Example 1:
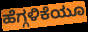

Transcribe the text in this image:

ಹೆಗ್ಗಳಿಕೆಯೂ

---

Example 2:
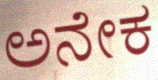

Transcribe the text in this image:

ಅನೇಕ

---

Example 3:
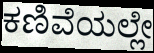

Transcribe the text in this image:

ಕಣಿವೆಯಲ್ಲೇ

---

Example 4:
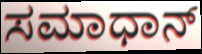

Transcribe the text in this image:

ಸಮಾಧಾನ್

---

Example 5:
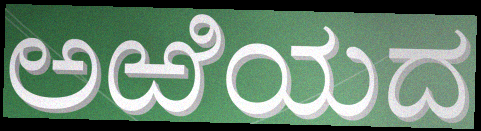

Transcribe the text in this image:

ಅಱಿಯದ